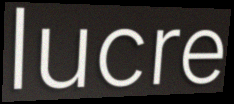
lucre